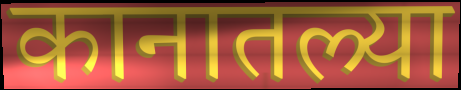
कानातल्या